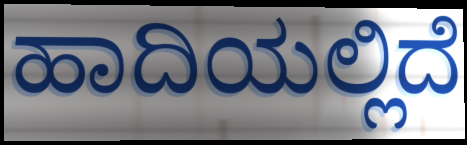
ಹಾದಿಯಲ್ಲಿದೆ